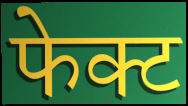
फेक्ट